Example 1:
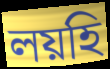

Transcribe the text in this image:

লয়হি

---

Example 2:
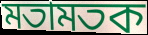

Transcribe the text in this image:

মতামতক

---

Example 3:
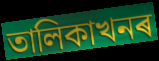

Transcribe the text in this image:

তালিকাখনৰ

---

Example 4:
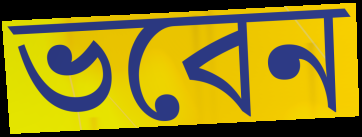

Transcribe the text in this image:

ভবেন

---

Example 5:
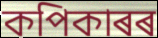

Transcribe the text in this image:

কপিকাৰৰ